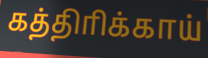
கத்திரிக்காய்